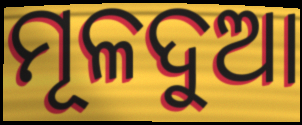
ମୂଳଦୁଆ